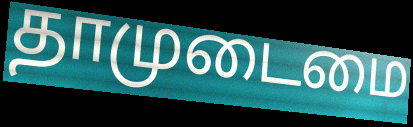
தாமுடைமை